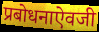
प्रबोधनाऐवजी